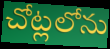
చోట్లలోను